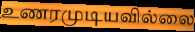
உணரமுடியவில்லை